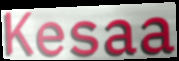
Kesaa